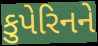
કુપેરિનને